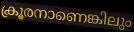
ക്രൂരനാണെങ്കിലും